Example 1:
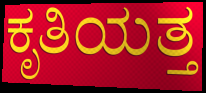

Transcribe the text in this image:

ಕೃತಿಯತ್ತ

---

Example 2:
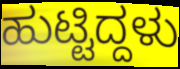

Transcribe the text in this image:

ಹುಟ್ಟಿದ್ದಳು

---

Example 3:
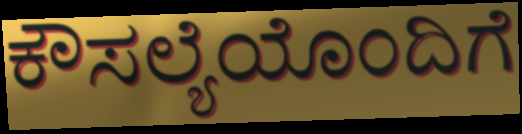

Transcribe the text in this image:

ಕೌಸಲ್ಯೆಯೊಂದಿಗೆ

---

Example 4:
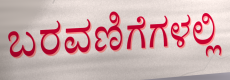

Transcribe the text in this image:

ಬರವಣಿಗೆಗಳಲ್ಲಿ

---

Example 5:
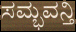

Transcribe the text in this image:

ಸಮ್ಭವನ್ತಿ